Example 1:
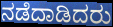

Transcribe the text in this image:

ನಡೆದಾಡಿದರು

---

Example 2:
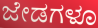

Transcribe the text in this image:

ಜೇಡಗಳೂ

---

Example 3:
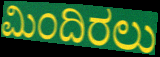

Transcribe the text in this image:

ಮಿಂದಿರಲು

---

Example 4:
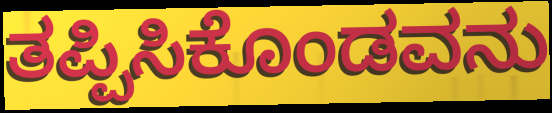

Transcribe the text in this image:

ತಪ್ಪಿಸಿಕೊಂಡವನು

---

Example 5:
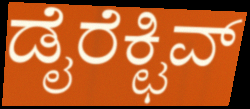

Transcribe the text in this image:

ಡೈರೆಕ್ಟಿವ್